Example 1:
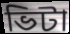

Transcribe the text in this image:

ভিটা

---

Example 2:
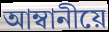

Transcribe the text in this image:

আম্বানীয়ে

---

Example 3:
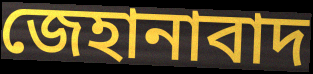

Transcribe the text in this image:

জেহানাবাদ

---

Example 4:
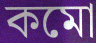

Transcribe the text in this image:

কমো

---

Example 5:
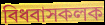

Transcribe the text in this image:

বিধবাসকলক